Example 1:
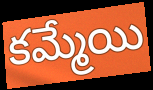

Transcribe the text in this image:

కమ్మేయి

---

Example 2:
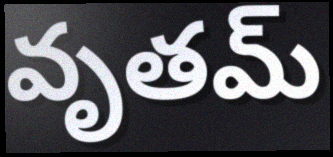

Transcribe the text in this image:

వృతమ్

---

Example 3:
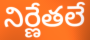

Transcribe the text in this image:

నిర్ణేతలే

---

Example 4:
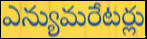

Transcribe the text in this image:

ఎన్యుమరేటర్లు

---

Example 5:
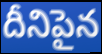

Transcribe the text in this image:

దీనిపైన